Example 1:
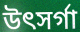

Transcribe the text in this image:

উৎসৰ্গা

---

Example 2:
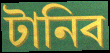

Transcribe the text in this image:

টানিব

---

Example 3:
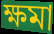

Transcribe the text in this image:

ক্ষমা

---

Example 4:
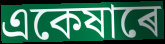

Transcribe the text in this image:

একেষাৰে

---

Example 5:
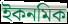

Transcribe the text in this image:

ইকনমিক